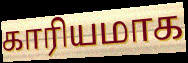
காரியமாக